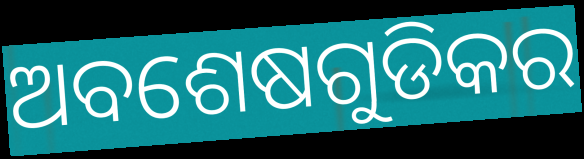
ଅବଶେଷଗୁଡିକର